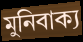
মুনিবাক্য